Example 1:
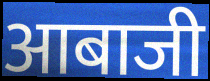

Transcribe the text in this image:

आबाजी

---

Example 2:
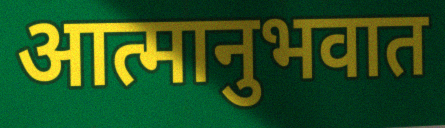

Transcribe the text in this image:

आत्मानुभवात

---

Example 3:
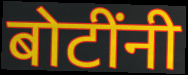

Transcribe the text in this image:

बोटींनी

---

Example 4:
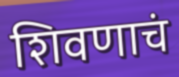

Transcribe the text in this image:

शिवणाचं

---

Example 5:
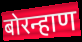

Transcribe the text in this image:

बोरन्हाण